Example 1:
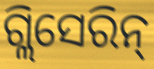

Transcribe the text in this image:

ଗ୍ଲିସେରିନ୍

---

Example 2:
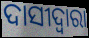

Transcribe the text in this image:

ଦାସୀଦ୍ୱାରା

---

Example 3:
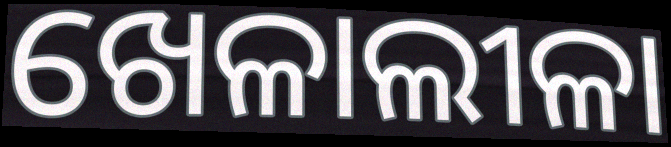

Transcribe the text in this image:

ଖେଳାଲୀଳା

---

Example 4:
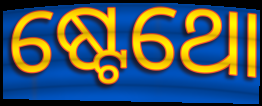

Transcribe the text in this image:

ଷ୍ଟେଥୋ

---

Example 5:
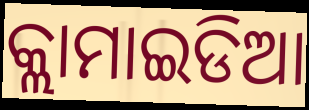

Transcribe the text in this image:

କ୍ଲାମାଇଡିଆ